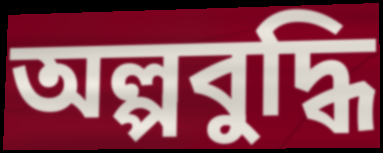
অল্পবুদ্ধি